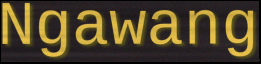
Ngawang